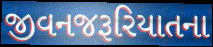
જીવનજરૂરિયાતના